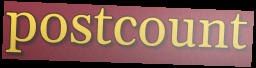
postcount